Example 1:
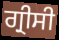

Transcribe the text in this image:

ਗ੍ਰੀਸੀ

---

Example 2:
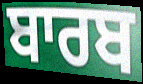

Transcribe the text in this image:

ਬਾਰਬ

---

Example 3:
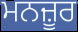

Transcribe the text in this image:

ਮਨਜ਼ੂਰ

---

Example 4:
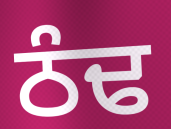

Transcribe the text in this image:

ਠੰਢ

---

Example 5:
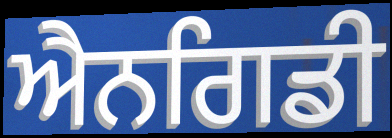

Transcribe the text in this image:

ਐਨਗਿਡੀ